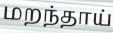
மறந்தாய்